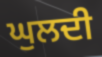
ਘੁਲਦੀ